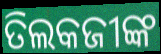
ତିଲକଜୀଙ୍କ